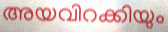
അയവിറക്കിയും